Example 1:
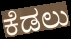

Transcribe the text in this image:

ಕೆಡಲು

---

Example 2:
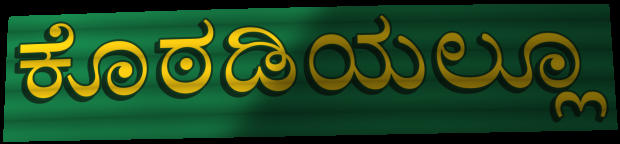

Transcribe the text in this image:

ಕೊಠಡಿಯಲ್ಲೂ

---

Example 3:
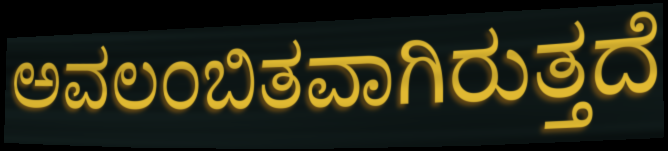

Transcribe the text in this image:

ಅವಲಂಬಿತವಾಗಿರುತ್ತದೆ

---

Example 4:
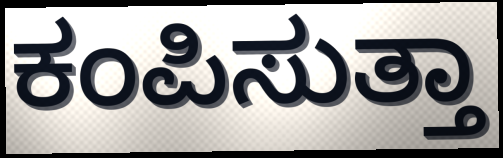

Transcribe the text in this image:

ಕಂಪಿಸುತ್ತಾ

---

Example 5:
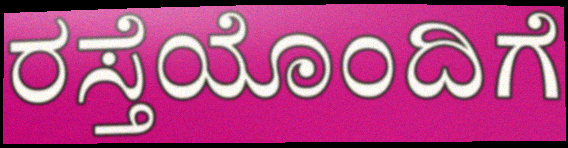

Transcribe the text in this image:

ರಸ್ತೆಯೊಂದಿಗೆ